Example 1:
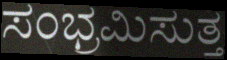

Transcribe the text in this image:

ಸಂಭ್ರಮಿಸುತ್ತ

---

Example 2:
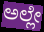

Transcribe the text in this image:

ಅಲ್ಲೇ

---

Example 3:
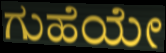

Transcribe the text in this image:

ಗುಹೆಯೇ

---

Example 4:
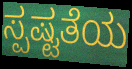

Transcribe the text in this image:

ಸ್ಪಷ್ಟತೆಯ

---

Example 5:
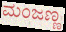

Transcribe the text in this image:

ಮಂಜಣ್ಣ